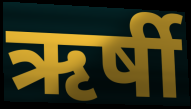
ऋर्षी